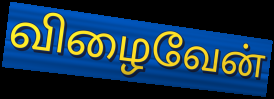
விழைவேன்